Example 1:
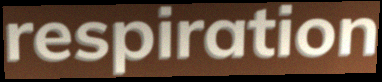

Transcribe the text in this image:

respiration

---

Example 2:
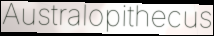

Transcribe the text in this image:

Australopithecus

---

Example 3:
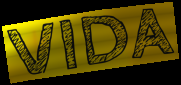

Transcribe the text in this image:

VIDA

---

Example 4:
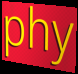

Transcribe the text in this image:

phy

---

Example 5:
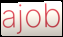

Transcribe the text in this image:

ajob